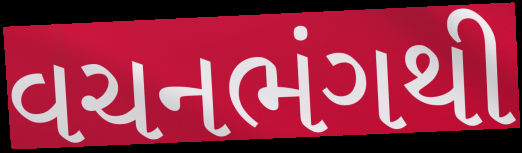
વચનભંગથી